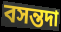
বসন্তদা